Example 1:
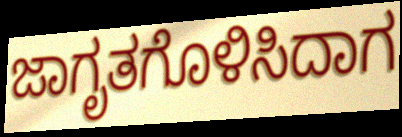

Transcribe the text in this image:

ಜಾಗೃತಗೊಳಿಸಿದಾಗ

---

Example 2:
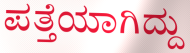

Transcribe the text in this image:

ಪತ್ತೆಯಾಗಿದ್ದು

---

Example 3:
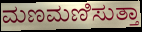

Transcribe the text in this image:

ಮಣಮಣಿಸುತ್ತಾ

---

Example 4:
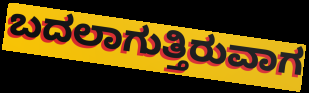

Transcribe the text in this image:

ಬದಲಾಗುತ್ತಿರುವಾಗ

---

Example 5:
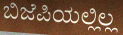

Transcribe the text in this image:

ಬಿಜೆಪಿಯಲ್ಲಿಲ್ಲ